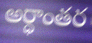
అర్ధాంతర